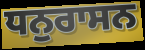
ਧਨੁਰਾਸਨ